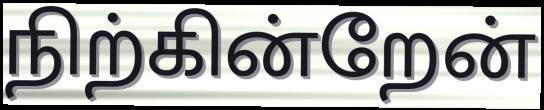
நிற்கின்றேன்